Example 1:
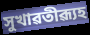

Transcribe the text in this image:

সুখাৱতীৱ্যূহ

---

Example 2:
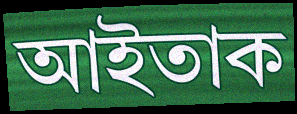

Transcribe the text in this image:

আইতাক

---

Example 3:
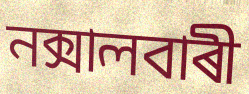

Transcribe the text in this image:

নক্সালবাৰী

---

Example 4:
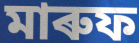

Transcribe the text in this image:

মাৰুফ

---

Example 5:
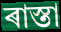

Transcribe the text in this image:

ৰাস্তা